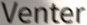
Venter